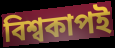
বিশ্বকাপই